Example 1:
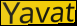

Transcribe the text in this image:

Yavat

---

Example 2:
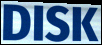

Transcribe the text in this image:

DISK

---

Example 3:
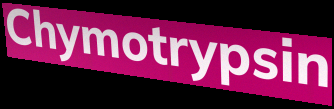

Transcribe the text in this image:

Chymotrypsin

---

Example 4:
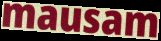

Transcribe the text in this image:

mausam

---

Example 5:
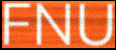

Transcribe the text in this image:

FNU